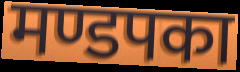
मण्डपका